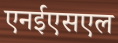
एनईएसएल